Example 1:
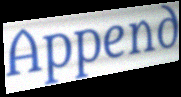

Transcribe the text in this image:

Append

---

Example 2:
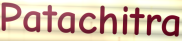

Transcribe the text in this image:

Patachitra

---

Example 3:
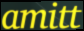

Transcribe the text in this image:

amitt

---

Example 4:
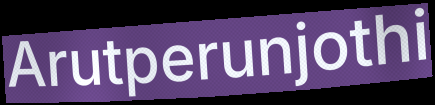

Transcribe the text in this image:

Arutperunjothi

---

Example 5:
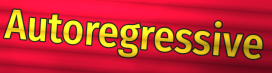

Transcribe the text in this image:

Autoregressive